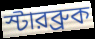
স্টারব্রুক